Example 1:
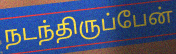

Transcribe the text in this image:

நடந்திருப்பேன்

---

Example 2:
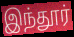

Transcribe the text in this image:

இந்தூர்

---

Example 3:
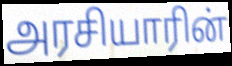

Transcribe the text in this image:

அரசியாரின்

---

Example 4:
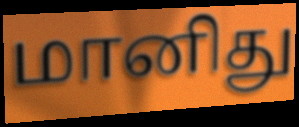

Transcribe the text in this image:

மானிது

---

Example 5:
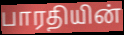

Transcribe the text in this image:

பாரதியின்